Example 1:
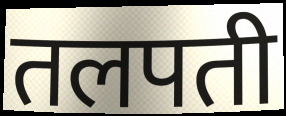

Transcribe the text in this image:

तलपती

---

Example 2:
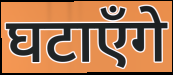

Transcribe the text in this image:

घटाएँगे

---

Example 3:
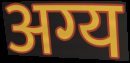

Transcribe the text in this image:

अग्य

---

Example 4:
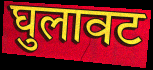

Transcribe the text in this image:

घुलावट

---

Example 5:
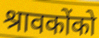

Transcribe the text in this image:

श्रावकोंको